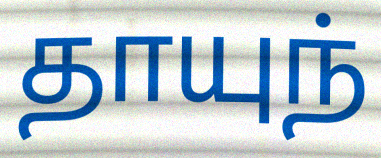
தாயுந்